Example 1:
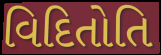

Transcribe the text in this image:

વિદિતોતિ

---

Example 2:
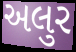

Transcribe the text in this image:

અલુર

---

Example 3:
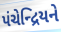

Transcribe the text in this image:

પંચેન્દ્રિયને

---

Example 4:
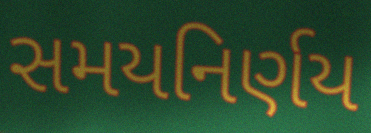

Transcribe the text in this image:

સમયનિર્ણય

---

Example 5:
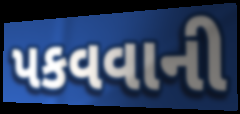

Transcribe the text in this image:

પકવવાની